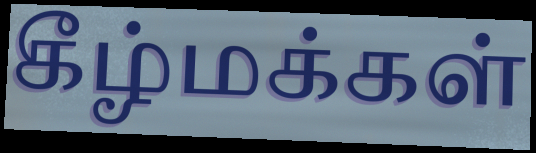
கீழ்மக்கள்